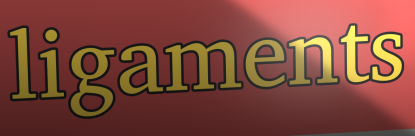
ligaments